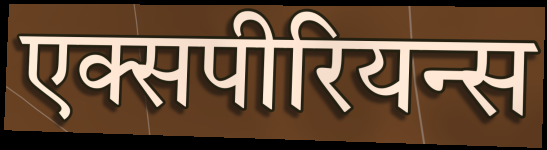
एक्सपीरियन्स